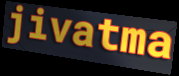
jivatma